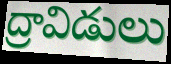
ద్రావిడులు